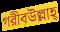
গরীবউল্লাহ্